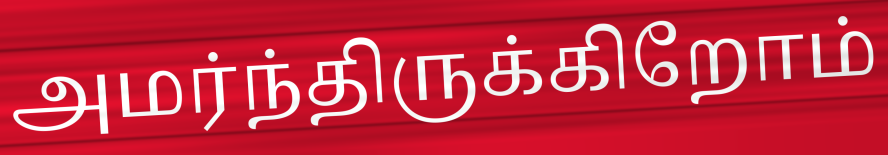
அமர்ந்திருக்கிறோம்